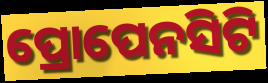
ପ୍ରୋପେନସିଟି